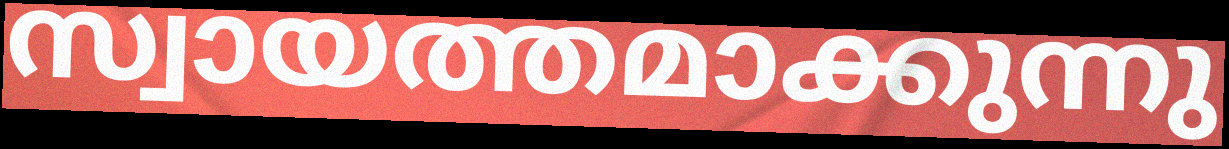
സ്വായത്തമാക്കുന്നു